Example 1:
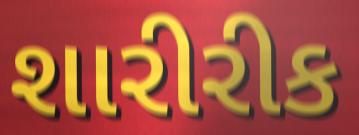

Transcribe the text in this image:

શારીરીક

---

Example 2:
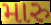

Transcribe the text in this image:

મારુ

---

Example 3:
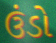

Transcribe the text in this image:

ઉંડો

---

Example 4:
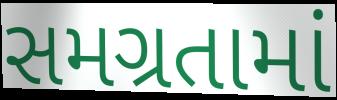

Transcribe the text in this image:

સમગ્રતામાં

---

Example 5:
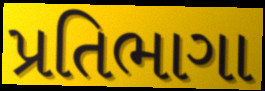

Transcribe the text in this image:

પ્રતિભાગા